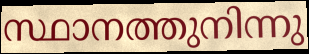
സ്ഥാനത്തുനിന്നു